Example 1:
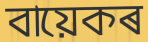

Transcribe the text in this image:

বায়েকৰ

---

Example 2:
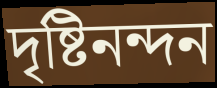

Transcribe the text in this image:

দৃষ্টিনন্দন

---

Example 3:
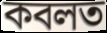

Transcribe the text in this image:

কবলত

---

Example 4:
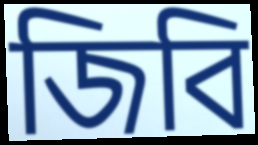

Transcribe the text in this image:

জিবি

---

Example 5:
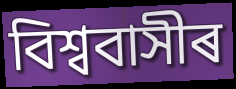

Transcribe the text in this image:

বিশ্ববাসীৰ